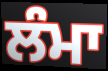
ਲੰਮਾ